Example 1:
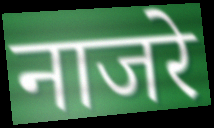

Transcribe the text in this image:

नाजरे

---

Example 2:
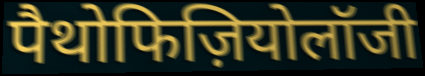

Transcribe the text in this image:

पैथोफिज़ियोलॉजी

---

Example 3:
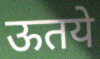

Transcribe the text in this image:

ऊतये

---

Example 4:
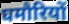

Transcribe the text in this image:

घमौरियों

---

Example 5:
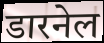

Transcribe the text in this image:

डारनेल